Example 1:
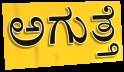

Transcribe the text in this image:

ಅಗುತ್ತೆ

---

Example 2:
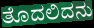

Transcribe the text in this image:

ತೊದಲಿದನು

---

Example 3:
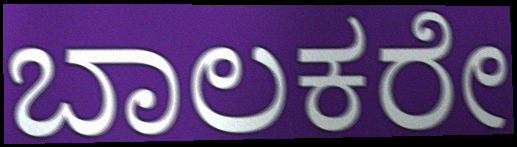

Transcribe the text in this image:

ಬಾಲಕರೇ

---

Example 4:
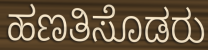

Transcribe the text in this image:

ಹಣತಿಸೊಡರು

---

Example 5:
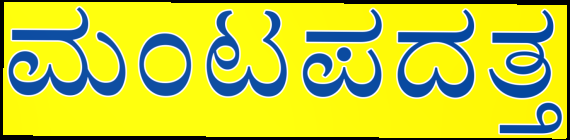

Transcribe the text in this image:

ಮಂಟಪದತ್ತ